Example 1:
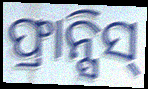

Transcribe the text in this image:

ଫ୍ରାନ୍ସିସ୍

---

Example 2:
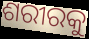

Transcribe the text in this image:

ଶରୀରକୁ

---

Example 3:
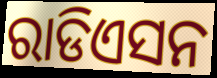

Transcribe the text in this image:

ରାଡିଏସନ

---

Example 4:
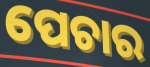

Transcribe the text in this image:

ପେଚାର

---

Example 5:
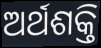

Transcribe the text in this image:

ଅର୍ଥଶକ୍ତି